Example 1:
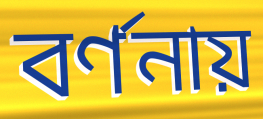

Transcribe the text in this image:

বর্ণনায়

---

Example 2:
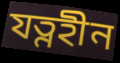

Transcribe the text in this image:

যত্নহীন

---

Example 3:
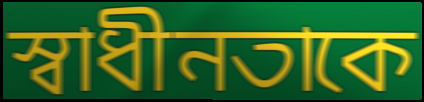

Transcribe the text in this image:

স্বাধীনতাকে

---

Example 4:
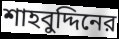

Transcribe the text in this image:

শাহবুদ্দিনের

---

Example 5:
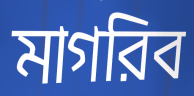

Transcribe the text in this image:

মাগরিব